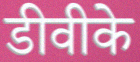
डीवीके